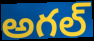
అగల్